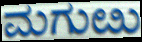
ಮಗುೞು